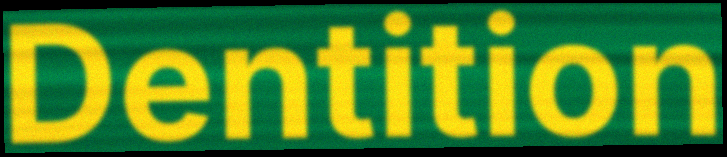
Dentition